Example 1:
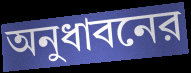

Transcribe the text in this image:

অনুধাবনের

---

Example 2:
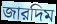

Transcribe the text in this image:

জারদিম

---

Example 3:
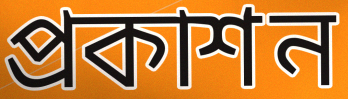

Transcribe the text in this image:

প্রকাশন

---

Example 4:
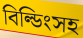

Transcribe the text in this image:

বিল্ডিংসহ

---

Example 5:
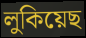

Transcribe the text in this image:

লুকিয়েছ